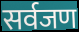
सर्वजण